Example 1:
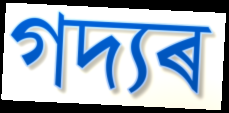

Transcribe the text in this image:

গদ্যৰ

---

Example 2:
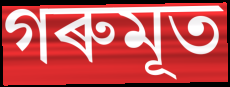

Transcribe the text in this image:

গৰুমূত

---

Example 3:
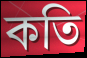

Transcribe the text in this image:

কতি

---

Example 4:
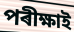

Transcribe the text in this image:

পৰীক্ষাই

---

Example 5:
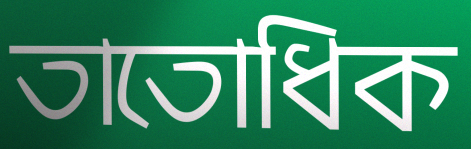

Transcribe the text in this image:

তাতোধিক